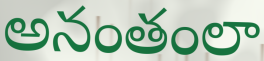
అనంతంలా